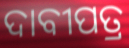
ଦାବୀପତ୍ର